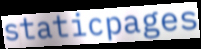
staticpages